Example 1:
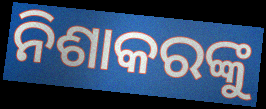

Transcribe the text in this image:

ନିଶାକରଙ୍କୁ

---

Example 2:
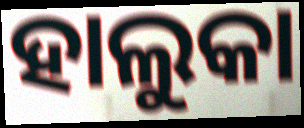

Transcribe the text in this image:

ହାଲୁକା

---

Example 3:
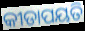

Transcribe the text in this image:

କୀଡାପୟତି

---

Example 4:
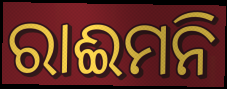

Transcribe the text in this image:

ରାଈମନି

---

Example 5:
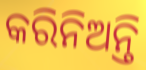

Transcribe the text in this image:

କରିନିଅନ୍ତି